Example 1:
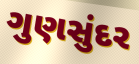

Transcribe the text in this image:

ગુણસુંદર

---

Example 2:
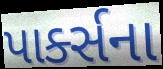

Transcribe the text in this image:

પાર્ક્સના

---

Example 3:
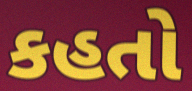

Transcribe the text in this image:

કહતો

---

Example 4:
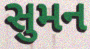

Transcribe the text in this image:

સુમન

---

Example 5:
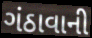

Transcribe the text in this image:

ગંઠાવાની